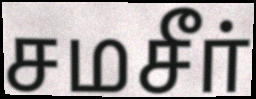
சமசீர்